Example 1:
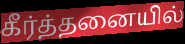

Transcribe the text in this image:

கீர்த்தனையில்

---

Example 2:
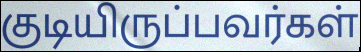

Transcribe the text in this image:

குடியிருப்பவர்கள்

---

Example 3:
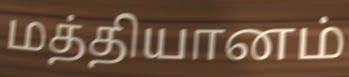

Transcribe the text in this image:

மத்தியானம்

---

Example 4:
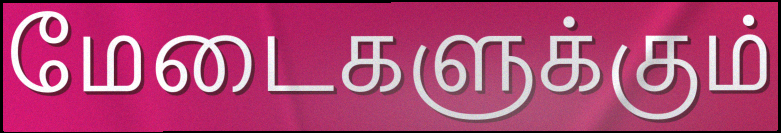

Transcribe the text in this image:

மேடைகளுக்கும்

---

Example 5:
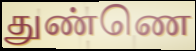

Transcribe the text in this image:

துண்ணெ